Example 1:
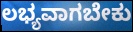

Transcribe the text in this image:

ಲಭ್ಯವಾಗಬೇಕು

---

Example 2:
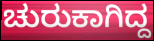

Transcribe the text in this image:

ಚುರುಕಾಗಿದ್ದ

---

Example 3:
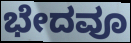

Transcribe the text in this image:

ಭೇದವೂ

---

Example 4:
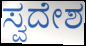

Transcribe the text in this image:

ಸ್ವದೇಶ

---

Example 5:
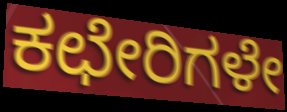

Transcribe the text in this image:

ಕಛೇರಿಗಳೇ